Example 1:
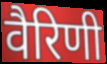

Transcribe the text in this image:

वैरिणी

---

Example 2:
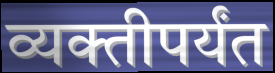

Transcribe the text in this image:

व्यक्तीपर्यंत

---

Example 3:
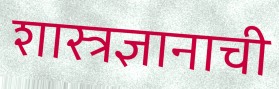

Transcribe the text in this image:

शास्त्रज्ञानाची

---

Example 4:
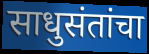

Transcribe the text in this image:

साधुसंतांचा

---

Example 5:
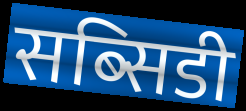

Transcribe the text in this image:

सब्सिडी